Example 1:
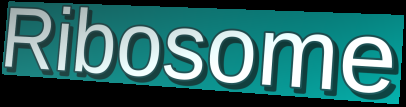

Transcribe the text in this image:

Ribosome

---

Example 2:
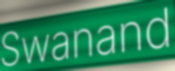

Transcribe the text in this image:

Swanand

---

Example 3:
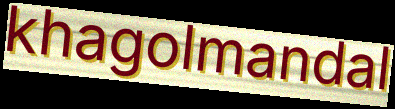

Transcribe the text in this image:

khagolmandal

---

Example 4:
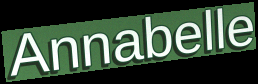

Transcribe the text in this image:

Annabelle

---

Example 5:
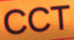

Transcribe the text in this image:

CCT